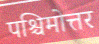
पश्चिमोत्तर